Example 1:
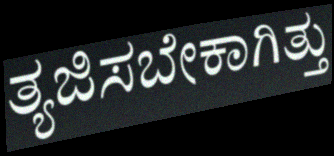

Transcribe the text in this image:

ತ್ಯಜಿಸಬೇಕಾಗಿತ್ತು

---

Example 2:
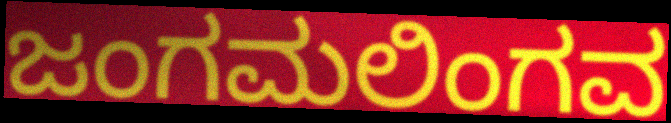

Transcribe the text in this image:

ಜಂಗಮಲಿಂಗವ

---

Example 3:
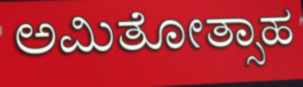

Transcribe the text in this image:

ಅಮಿತೋತ್ಸಾಹ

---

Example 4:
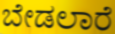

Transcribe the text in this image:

ಬೇಡಲಾರೆ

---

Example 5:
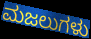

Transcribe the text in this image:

ಮಜಲುಗಳು